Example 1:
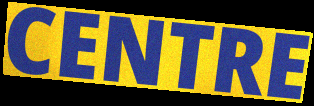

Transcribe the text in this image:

CENTRE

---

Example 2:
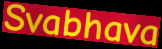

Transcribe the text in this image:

Svabhava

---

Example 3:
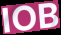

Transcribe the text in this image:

IOB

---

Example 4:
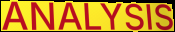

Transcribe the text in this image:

ANALYSIS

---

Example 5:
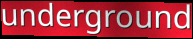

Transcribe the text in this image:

underground